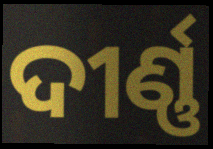
ଦୀର୍ଣ୍ଣ